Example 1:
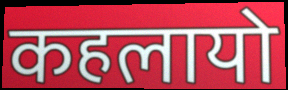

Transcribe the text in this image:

कहलायो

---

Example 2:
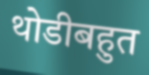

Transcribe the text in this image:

थोडीबहुत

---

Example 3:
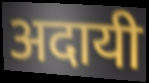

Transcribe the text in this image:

अदायी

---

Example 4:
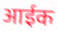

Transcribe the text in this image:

आईक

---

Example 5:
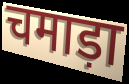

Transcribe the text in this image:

चमाड़ा